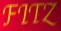
FITZ